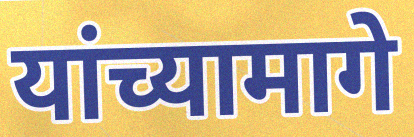
यांच्यामागे